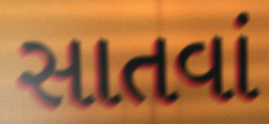
સાતવાં